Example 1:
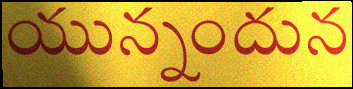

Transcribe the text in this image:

యున్నందున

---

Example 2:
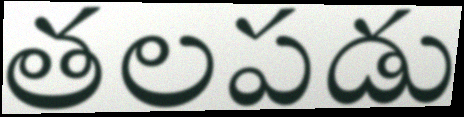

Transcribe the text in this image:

తలపడు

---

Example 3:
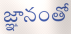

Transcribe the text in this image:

జ్ఞానంతో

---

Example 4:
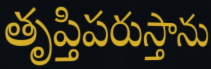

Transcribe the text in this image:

తృప్తిపరుస్తాను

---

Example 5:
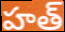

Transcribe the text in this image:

హత్